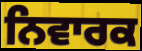
ਨਿਵਾਰਕ